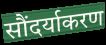
सौंदर्याकरण